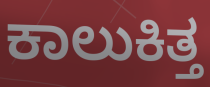
ಕಾಲುಕಿತ್ತ